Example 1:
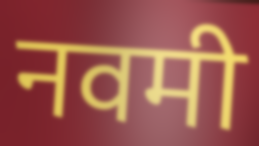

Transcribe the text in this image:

नवमी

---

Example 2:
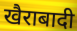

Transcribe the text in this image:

खैराबादी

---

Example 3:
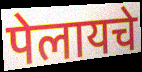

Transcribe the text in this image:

पेलायचे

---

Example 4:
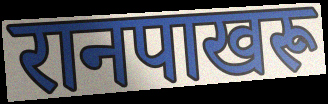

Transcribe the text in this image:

रानपाखरू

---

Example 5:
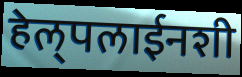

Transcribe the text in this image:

हेल्पलाईनशी